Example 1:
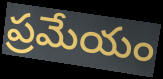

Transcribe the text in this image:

ప్రమేయం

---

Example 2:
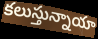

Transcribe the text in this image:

కలుస్తున్నాయా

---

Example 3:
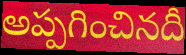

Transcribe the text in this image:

అప్పగించినదీ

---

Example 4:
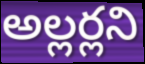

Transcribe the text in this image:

అల్లర్లని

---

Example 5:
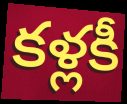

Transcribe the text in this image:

కళ్లకీ